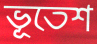
ভূতেশ